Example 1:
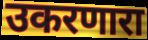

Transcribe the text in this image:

उकरणारा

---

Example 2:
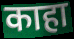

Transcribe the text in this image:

काहा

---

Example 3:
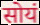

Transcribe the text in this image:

सोयं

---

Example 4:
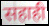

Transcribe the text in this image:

सहाही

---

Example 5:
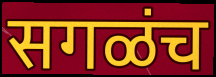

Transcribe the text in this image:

सगळंच